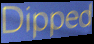
Dipped